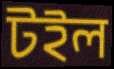
টইল